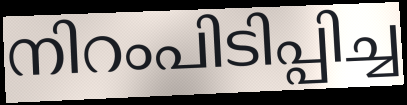
നിറംപിടിപ്പിച്ച